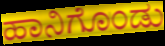
ಹಾನಿಗೊಂಡು